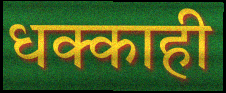
धक्काही